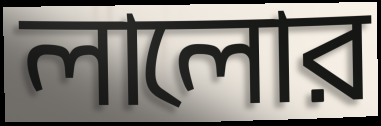
লালোর